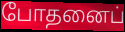
போதனைப்